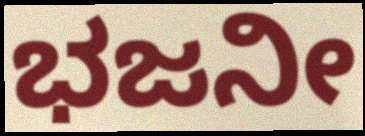
ಭಜನೀ